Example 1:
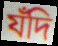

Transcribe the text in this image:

যঁদি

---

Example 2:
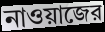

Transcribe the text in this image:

নাওয়াজের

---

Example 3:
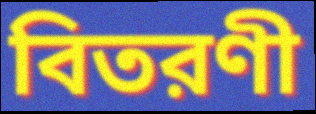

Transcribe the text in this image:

বিতরণী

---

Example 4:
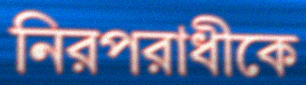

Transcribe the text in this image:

নিরপরাধীকে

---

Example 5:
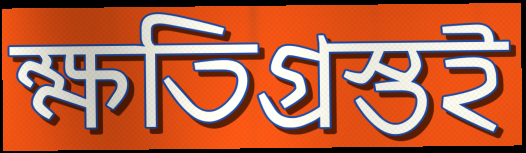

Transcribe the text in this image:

ক্ষতিগ্রস্তই